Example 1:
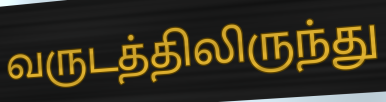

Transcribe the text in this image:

வருடத்திலிருந்து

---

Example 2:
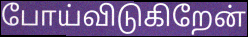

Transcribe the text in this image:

போய்விடுகிறேன்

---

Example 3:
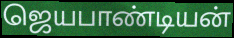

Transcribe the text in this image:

ஜெயபாண்டியன்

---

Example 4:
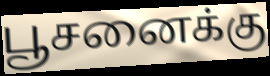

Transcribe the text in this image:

பூசனைக்கு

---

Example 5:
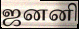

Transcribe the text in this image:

ஜனனி